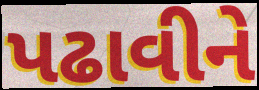
પઢાવીને